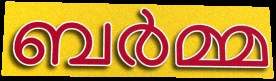
ബർമ്മ